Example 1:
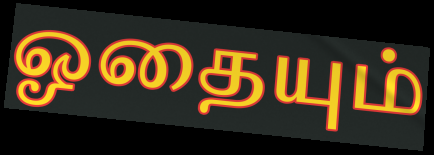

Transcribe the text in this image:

ஓதையும்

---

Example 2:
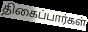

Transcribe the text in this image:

திகைப்பார்கள்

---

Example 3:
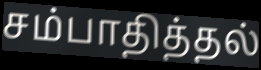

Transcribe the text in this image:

சம்பாதித்தல்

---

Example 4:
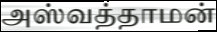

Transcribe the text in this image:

அஸ்வத்தாமன்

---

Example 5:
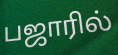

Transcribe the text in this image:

பஜாரில்